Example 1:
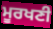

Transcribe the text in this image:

ਮੂਰਖਣੀ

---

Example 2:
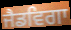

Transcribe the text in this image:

ਜੈਡਵਿਗਾ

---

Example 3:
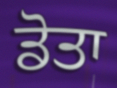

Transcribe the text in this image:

ਡੋਤਾ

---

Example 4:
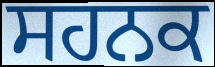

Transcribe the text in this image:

ਸਹਨਕ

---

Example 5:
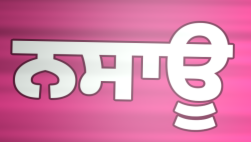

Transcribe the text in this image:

ਨਸਾਊ